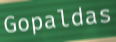
Gopaldas